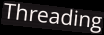
Threading